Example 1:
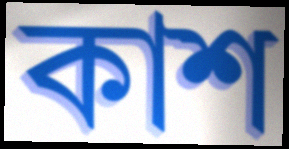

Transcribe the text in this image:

কাশ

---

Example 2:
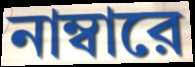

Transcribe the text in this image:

নাম্বারে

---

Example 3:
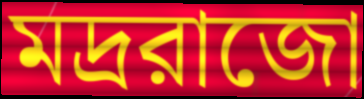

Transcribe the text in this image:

মদ্ররাজো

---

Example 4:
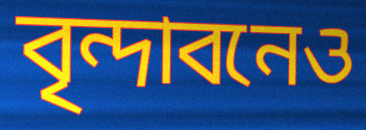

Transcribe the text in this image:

বৃন্দাবনেও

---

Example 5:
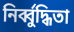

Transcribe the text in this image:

নির্ব্বুদ্ধিতা